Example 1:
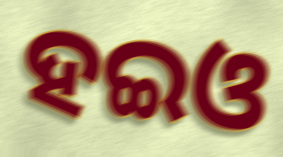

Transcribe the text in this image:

ହଇଓ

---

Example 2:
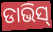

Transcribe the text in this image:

ଡାଭିସ୍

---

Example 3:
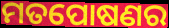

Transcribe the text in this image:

ମତପୋଷଣର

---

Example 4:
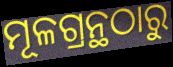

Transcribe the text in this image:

ମୂଳଗ୍ରନ୍ଥଠାରୁ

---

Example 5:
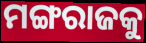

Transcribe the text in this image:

ମଙ୍ଗରାଜକୁ